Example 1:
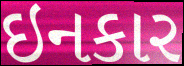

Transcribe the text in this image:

ઇનકાર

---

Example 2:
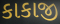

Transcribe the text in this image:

કાકાજી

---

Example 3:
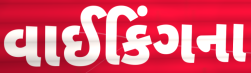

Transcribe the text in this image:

વાઈકિંગના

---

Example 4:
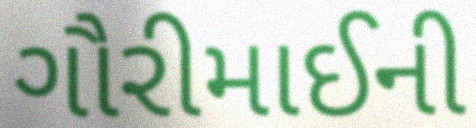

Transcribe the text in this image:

ગૌરીમાઈની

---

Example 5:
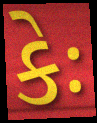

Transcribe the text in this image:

કેઃ